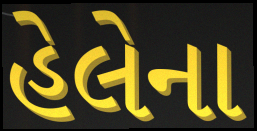
હેલેના